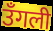
उँगली